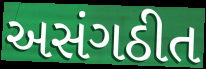
અસંગઠીત